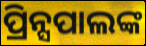
ପ୍ରିନ୍ସପାଲଙ୍କ